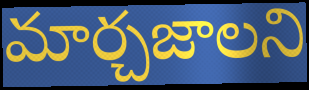
మార్చజాలని